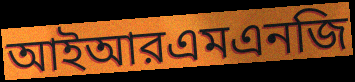
আইআরএমএনজি